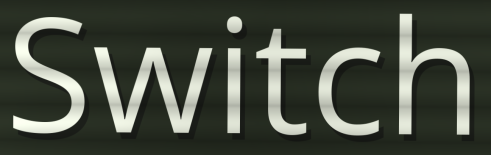
Switch